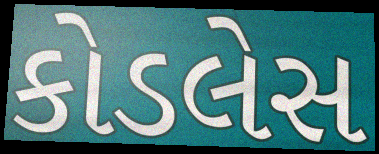
કોડલેસ